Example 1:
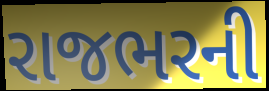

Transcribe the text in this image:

રાજભરની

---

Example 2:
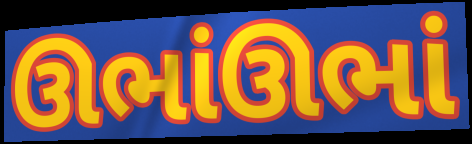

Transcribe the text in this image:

ઊભાંઊભાં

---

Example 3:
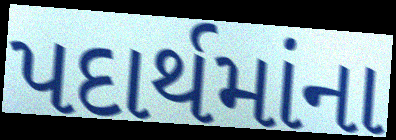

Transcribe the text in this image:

પદાર્થમાંના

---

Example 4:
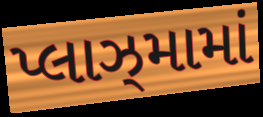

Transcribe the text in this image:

પ્લાઝ્મામાં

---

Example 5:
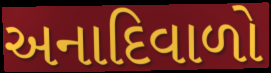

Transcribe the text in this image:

અનાદિવાળો